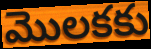
మొలకకు